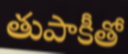
తుపాకీతో